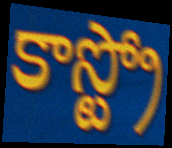
కాస్ట్రో